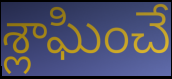
శ్లాఘించే